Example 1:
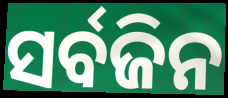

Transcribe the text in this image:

ସର୍ବଜିନ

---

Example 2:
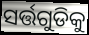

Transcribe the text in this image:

ସର୍ତ୍ତଗୁଡିକୁ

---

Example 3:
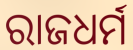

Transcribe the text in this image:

ରାଜଧର୍ମ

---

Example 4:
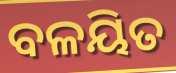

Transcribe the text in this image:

ବଳୟିତ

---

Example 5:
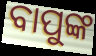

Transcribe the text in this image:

ବାପୁଙ୍କ